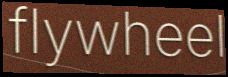
flywheel